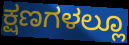
ಕ್ಷಣಗಳಲ್ಲೂ